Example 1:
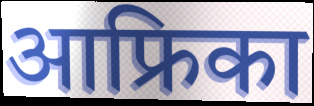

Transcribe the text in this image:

आफ्रिका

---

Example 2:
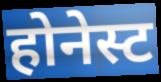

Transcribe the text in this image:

होनेस्ट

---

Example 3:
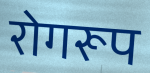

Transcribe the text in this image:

रोगरूप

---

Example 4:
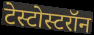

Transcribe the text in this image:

टेस्टोस्टरॉन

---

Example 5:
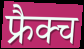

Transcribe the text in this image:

फ्रैक्च